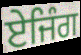
ਏਜਿੰਗ